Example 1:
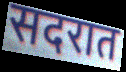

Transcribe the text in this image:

सदरात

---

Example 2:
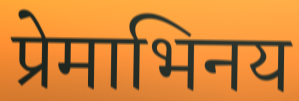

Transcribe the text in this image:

प्रेमाभिनय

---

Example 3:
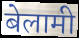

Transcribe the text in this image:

बेलामी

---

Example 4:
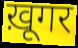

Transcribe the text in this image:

ख़ूगर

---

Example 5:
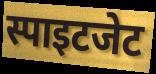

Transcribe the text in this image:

स्पाइटजेट